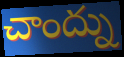
చాంద్ను